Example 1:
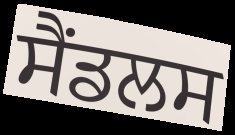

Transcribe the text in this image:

ਸੈਂਡਲਸ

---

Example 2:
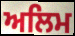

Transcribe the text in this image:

ਅਲਿਮ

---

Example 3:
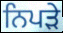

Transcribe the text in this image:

ਨਿਪੜੇ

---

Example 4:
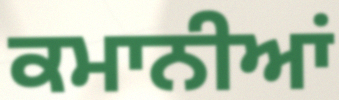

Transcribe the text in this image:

ਕਮਾਨੀਆਂ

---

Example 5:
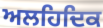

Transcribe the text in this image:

ਅਲਹਿਦਿਕ